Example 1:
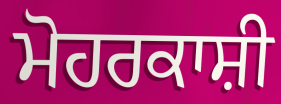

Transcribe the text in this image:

ਮੋਹਰਕਾਸ਼ੀ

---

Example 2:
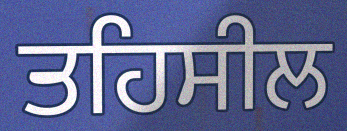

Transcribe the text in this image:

ਤਹਿਸੀਲ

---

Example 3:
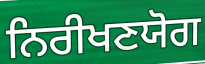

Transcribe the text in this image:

ਨਿਰੀਖਣਯੋਗ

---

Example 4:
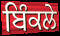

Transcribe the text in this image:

ਬਿੰਕਲੇ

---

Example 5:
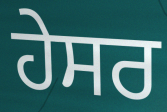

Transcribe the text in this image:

ਹੇਸਰ